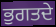
ਭੁਗਤਦੇ